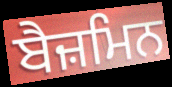
ਬੈਜ਼ਮਿਨ